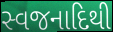
સ્વજનાદિથી